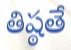
తిష్ఠతే